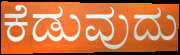
ಕೆಡುವುದು